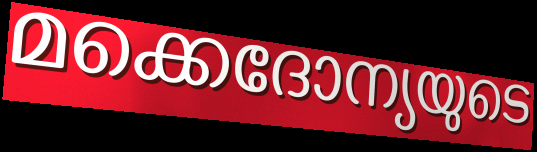
മക്കെദോന്യയുടെ